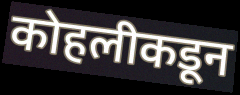
कोहलीकडून